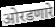
ओरडणारे